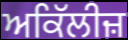
ਅਕਿੱਲੀਜ਼